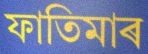
ফাতিমাৰ